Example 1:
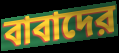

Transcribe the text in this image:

বাবাদের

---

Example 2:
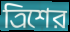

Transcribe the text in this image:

ত্রিশের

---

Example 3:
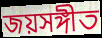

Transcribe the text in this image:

জয়সঙ্গীত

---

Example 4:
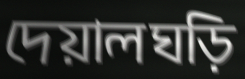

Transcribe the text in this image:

দেয়ালঘড়ি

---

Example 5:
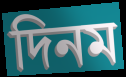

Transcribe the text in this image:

দিনম